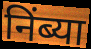
निंब्या